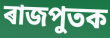
ৰাজপুতক